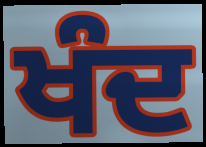
ਖੰਦ